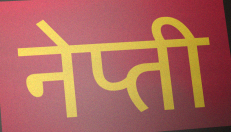
नेप्ती